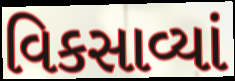
વિકસાવ્યાં